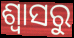
ଶ୍ୱାସରୁ